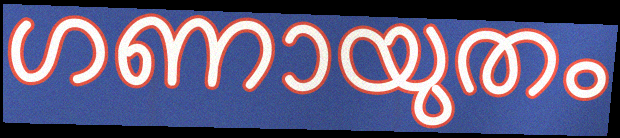
ഗണായുതം